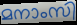
മനാംസി